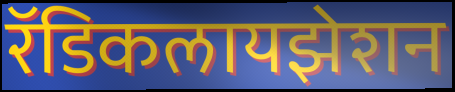
रॅडिकलायझेशन